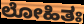
ಲೋಹಿತಃ